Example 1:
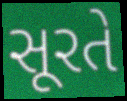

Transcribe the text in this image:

સૂરતે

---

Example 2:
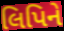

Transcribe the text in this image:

લિપિને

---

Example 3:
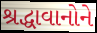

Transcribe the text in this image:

શ્રદ્ધાવાનોને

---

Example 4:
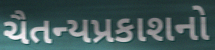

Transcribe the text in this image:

ચૈતન્યપ્રકાશનો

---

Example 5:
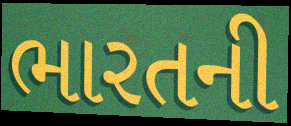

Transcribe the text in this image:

ભારતની